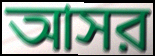
আসর